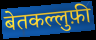
बेतकल्लुफ़ी